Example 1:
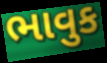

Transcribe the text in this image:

ભાવુક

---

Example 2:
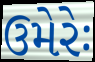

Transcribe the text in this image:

ઉમેરેઃ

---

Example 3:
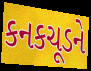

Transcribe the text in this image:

કનકચૂડને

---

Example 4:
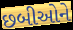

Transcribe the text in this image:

છબીઓને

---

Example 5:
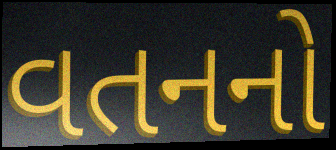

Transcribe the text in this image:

વતનનો